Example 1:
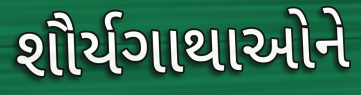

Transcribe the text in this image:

શૌર્યગાથાઓને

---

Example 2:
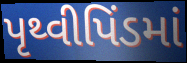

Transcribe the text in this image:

પૃથ્વીપિંડમાં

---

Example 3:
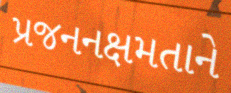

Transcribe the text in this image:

પ્રજનનક્ષમતાને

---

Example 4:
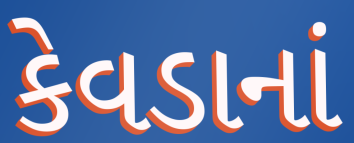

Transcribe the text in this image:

કેવડાનાં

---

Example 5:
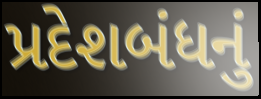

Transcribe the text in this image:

પ્રદેશબંધનું